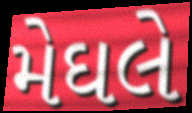
મેઘલે